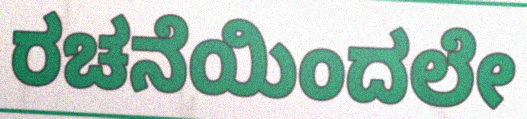
ರಚನೆಯಿಂದಲೇ